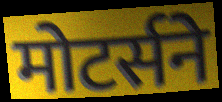
मोटर्सने